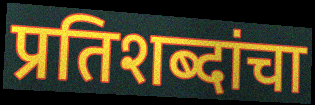
प्रतिशब्दांचा